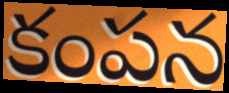
కంపన